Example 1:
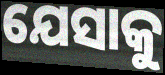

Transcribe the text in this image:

ଯେସାକୁ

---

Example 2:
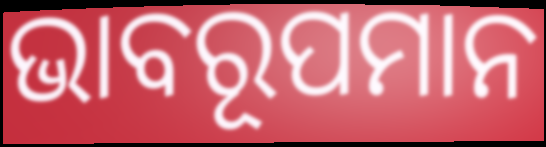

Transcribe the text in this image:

ଭାବରୂପମାନ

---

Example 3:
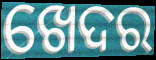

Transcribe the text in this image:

ଖେଦର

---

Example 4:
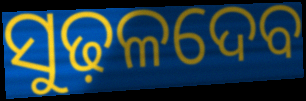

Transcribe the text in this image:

ସୁଢ଼ଳଦେବ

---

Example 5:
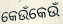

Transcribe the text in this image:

କେଉଁକେଉଁ